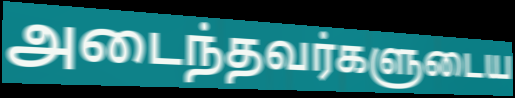
அடைந்தவர்களுடைய